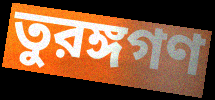
তুরঙ্গগণ